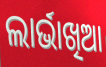
ଲାର୍ଭାଖିଆ